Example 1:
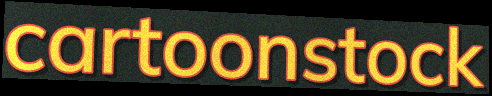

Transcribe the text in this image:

cartoonstock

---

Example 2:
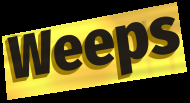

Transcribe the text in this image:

Weeps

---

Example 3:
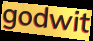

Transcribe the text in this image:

godwit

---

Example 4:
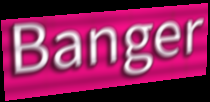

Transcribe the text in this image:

Banger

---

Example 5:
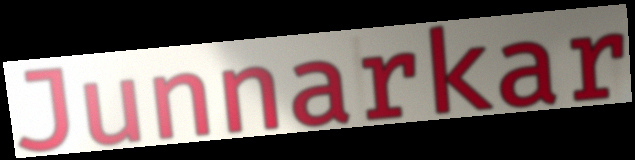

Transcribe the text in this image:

Junnarkar